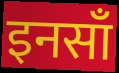
इनसाँ